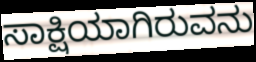
ಸಾಕ್ಷಿಯಾಗಿರುವನು